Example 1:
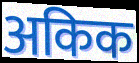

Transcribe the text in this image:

अकिक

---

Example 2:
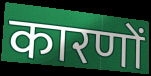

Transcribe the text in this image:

कारणों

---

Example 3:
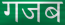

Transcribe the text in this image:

गजब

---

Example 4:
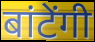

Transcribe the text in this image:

बांटेंगी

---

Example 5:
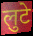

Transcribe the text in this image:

लुटे